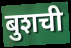
बुशची